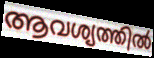
ആവശ്യത്തിൽ